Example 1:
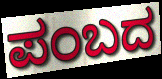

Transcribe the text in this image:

ಪಂಬದ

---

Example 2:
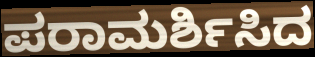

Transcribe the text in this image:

ಪರಾಮರ್ಶಿಸಿದ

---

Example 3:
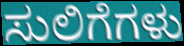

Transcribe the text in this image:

ಸುಲಿಗೆಗಳು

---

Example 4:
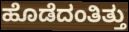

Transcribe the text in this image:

ಹೊಡೆದಂತಿತ್ತು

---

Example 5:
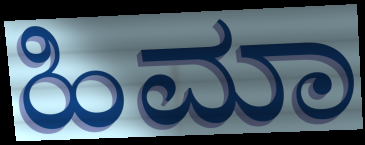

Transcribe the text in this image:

ಹಿಮಾ